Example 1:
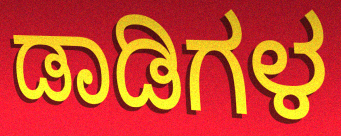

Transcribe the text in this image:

ಡಾಡಿಗಳ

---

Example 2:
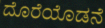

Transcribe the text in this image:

ದೊರೆಯೊಡನೆ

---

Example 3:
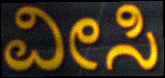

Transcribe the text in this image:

ವೀಸಿ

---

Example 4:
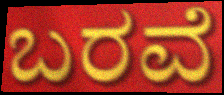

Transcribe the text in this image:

ಬರವೆ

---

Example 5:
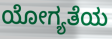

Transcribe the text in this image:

ಯೋಗ್ಯತೆಯ